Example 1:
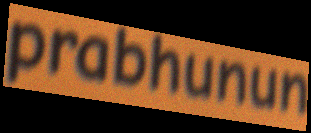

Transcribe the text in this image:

prabhunun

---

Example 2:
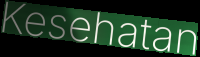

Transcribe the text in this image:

Kesehatan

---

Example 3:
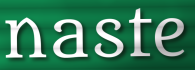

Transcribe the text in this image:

naste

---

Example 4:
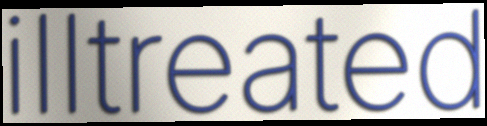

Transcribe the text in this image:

illtreated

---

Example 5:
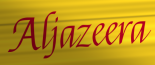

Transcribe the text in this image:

Aljazeera